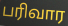
பரிவார